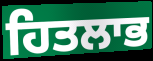
ਹਿਤਲਾਭ